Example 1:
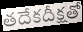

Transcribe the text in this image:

తదేకదీక్షతో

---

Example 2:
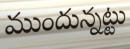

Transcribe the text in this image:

ముందున్నట్టు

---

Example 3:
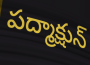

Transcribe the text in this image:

పద్మాక్షున్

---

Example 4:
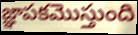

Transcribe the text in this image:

జ్ఞాపకమొస్తుంది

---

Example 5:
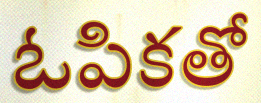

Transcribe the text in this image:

ఓపికతో